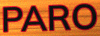
PARO